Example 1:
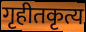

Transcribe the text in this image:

गृहीतकृत्य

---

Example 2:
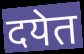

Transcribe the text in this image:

दयेत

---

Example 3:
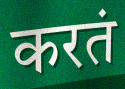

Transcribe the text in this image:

करतं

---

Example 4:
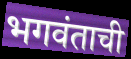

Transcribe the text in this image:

भगवंताची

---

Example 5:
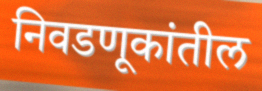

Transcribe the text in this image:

निवडणूकांतील